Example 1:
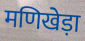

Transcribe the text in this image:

मणिखेड़ा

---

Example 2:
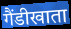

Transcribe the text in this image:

गैंडीखाता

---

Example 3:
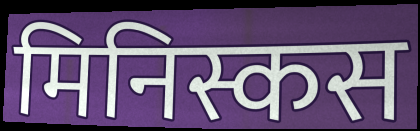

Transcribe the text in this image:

मिनिस्कस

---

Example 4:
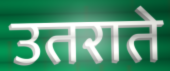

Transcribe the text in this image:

उतराते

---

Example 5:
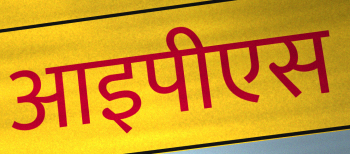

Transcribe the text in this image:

आइपीएस